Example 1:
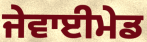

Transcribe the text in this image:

ਜੇਵਾਈਮੇਡ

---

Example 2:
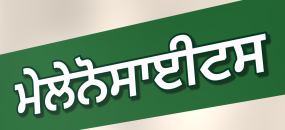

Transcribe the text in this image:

ਮੇਲੇਨੋਸਾਈਟਸ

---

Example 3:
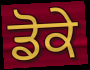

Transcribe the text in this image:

ਡੋਕੇ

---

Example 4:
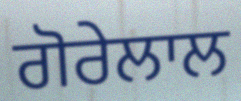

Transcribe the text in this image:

ਗੋਰੇਲਾਲ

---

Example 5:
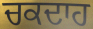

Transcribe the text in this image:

ਚਕਦਾਹ